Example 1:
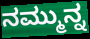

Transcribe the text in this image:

ನಮ್ಮುನ್ನ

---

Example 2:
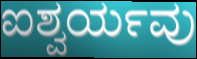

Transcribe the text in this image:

ಐಶ್ವರ್ಯವು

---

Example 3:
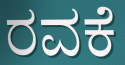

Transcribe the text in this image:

ರವಕೆ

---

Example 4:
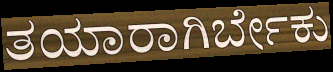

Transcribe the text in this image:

ತಯಾರಾಗಿರ್ಬೇಕು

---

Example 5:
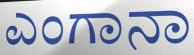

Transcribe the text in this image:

ಎಂಗಾನಾ